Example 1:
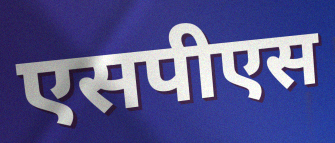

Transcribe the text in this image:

एसपीएस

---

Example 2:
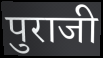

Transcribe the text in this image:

पुराजी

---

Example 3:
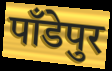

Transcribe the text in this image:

पाँडेपुर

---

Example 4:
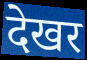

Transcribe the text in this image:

देखर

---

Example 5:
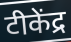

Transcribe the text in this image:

टीकेंद्र